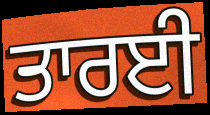
ਤਾਰਈ